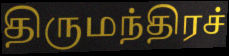
திருமந்திரச்